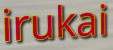
irukai